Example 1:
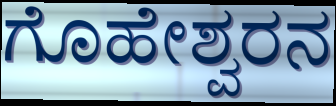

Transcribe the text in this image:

ಗೊಹೇಶ್ವರನ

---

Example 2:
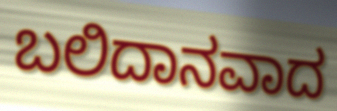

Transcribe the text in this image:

ಬಲಿದಾನವಾದ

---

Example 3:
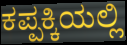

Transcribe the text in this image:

ಕಪ್ಪಕ್ಕಿಯಲ್ಲಿ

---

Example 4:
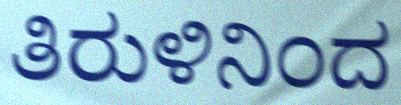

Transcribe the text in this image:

ತಿರುಳಿನಿಂದ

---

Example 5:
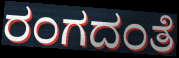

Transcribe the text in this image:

ರಂಗದಂತೆ